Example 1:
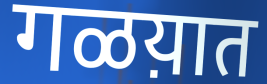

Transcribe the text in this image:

गळय़ात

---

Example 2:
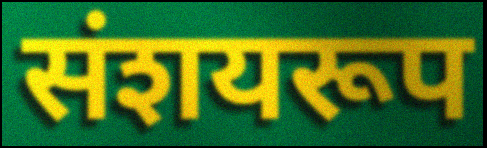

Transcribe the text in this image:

संशयरूप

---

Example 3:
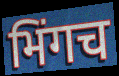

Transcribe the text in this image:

भिंगच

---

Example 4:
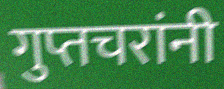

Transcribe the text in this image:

गुप्तचरांनी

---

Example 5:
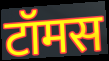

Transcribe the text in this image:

टॉमस